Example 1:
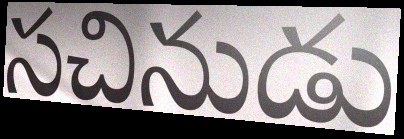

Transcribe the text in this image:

సచినుడు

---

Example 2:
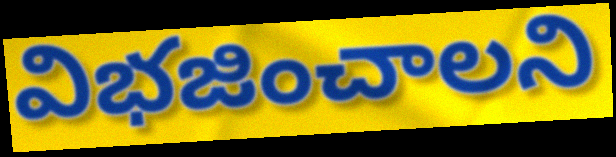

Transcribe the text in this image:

విభజించాలని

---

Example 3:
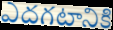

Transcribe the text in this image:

ఎదగటానికి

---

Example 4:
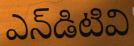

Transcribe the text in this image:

ఎన్‌డిటివి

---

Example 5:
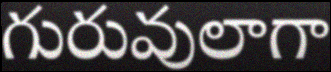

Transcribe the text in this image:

గురువులాగా